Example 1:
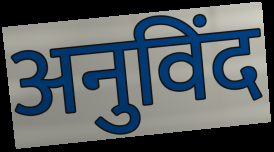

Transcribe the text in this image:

अनुविंद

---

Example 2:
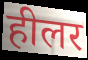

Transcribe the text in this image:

हीलर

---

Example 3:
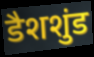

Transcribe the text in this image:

डैशशुंड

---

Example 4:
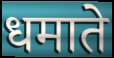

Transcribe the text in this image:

धमाते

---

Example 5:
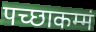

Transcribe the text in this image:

पच्छाकम्मं